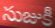
సుజుకీ